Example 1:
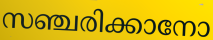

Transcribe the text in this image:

സഞ്ചരിക്കാനോ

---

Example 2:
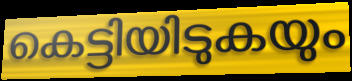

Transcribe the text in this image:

കെട്ടിയിടുകയും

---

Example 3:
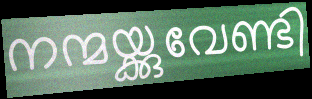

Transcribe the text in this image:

നന്മയ്ക്കുവേണ്ടി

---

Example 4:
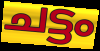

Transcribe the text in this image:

ചട്ടം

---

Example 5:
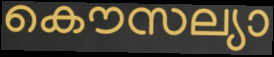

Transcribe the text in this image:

കൌസല്യാ